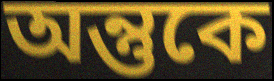
অন্তুকে